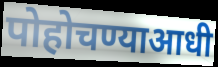
पोहोचण्याआधी